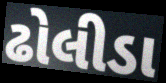
ઢોલીડા